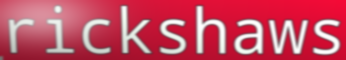
rickshaws